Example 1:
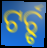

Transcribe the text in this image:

ଟର୍ଚ୍ଚ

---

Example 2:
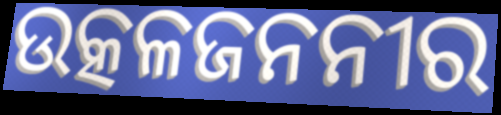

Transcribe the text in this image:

ଉତ୍କଳଜନନୀର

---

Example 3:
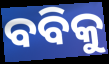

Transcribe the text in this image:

ବବିକୁ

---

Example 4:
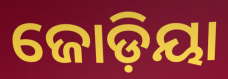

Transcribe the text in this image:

ଜୋଡ଼ିୟା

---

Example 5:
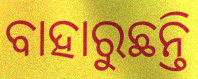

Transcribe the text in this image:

ବାହାରୁଛନ୍ତି